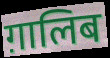
ग़ालिब